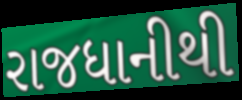
રાજધાનીથી